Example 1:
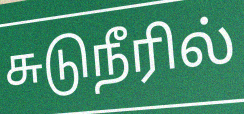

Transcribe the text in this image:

சுடுநீரில்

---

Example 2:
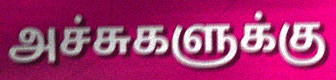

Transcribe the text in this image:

அச்சுகளுக்கு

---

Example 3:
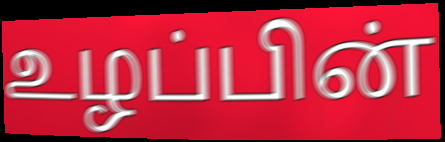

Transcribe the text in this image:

உழப்பின்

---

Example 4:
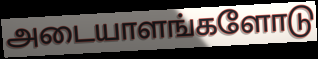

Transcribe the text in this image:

அடையாளங்களோடு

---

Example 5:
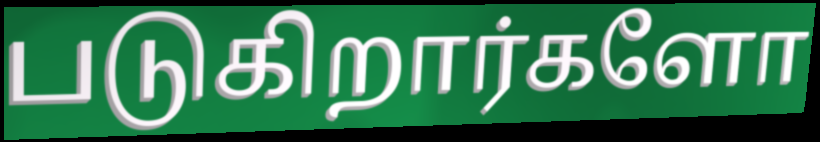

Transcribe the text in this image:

படுகிறார்களோ